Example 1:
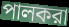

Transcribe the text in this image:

পালকরা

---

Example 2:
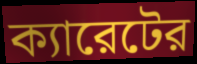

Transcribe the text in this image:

ক্যারেটের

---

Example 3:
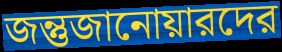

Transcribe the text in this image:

জন্তুজানোয়ারদের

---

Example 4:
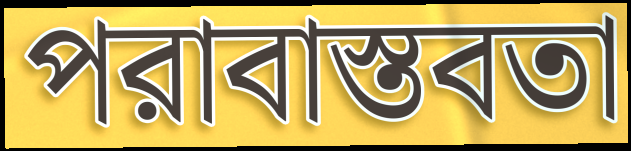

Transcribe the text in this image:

পরাবাস্তবতা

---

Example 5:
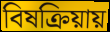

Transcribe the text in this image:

বিষক্রিয়ায়